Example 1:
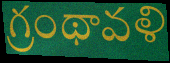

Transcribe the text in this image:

గ్రంథావళి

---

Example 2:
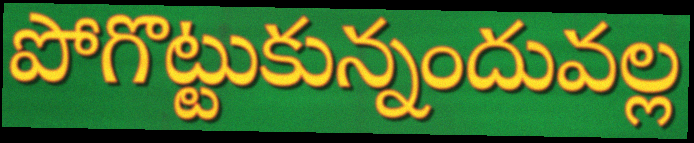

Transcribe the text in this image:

పోగొట్టుకున్నందువల్ల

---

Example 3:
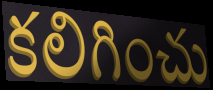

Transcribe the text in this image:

కలిగించు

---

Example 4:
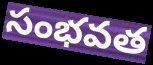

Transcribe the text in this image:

సంభవత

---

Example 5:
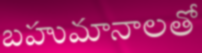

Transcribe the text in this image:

బహుమానాలతో